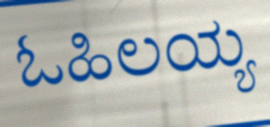
ಓಹಿಲಯ್ಯ